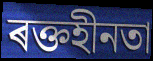
ৰক্তহীনতা